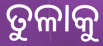
ତୁଳାକୁ